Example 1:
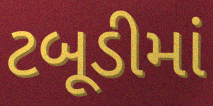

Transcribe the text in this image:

ટબૂડીમાં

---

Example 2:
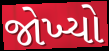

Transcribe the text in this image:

જોખ્યો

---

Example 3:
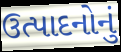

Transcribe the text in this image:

ઉત્પાદનોનું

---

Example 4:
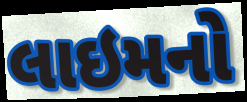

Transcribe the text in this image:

લાઇમનો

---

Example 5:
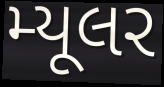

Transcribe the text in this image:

મ્યૂલર